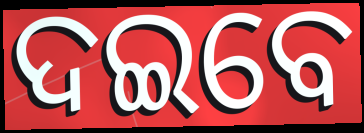
ଦଇବେ